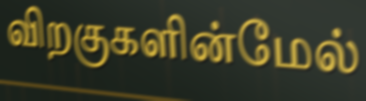
விறகுகளின்மேல்